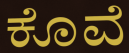
ಕೊವೆ